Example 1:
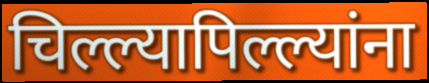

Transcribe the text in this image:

चिल्ल्यापिल्ल्यांना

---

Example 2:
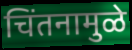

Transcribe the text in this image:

चिंतनामुळे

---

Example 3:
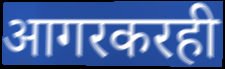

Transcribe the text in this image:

आगरकरही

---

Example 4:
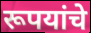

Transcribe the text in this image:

रूपयांचे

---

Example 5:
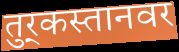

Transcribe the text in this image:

तुर्कस्तानवर